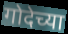
गोदेच्या